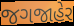
જગજાહેર